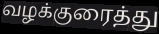
வழக்குரைத்து